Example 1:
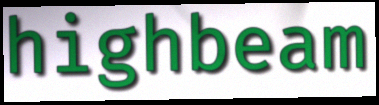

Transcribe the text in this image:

highbeam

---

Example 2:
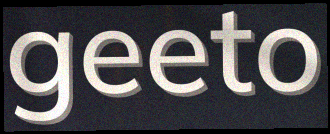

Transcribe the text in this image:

geeto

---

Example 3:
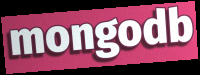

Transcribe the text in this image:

mongodb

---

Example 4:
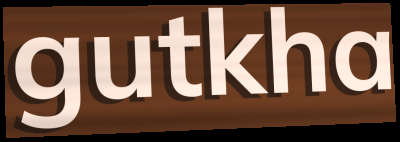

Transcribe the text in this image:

gutkha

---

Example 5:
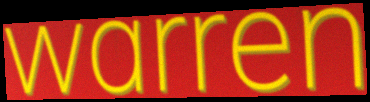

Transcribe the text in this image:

warren